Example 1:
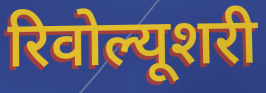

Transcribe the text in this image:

रिवोल्यूशरी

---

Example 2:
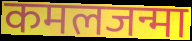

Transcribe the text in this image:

कमलजन्मा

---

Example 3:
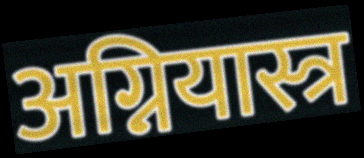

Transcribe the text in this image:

अग्नियास्त्र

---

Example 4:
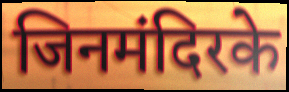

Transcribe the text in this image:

जिनमंदिरके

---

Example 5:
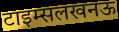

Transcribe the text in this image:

टाइम्सलखनऊ